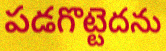
పడగొట్టెదను